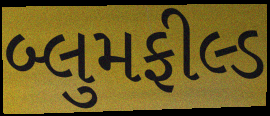
બ્લુમફીલ્ડ